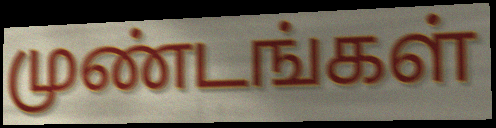
முண்டங்கள்